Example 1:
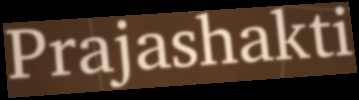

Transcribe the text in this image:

Prajashakti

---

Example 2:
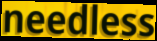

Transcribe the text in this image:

needless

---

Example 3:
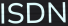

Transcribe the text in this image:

ISDN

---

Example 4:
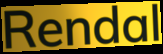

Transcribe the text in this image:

Rendal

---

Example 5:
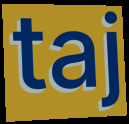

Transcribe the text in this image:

taj